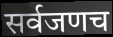
सर्वजणच